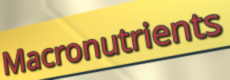
Macronutrients